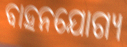
ବାହନଯୋଗ୍ୟ